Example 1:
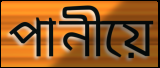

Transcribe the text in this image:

পানীয়ে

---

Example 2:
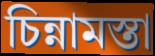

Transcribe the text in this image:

চিন্নামস্তা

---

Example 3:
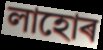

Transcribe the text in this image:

লাহোৰ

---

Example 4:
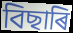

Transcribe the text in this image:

বিছাৰি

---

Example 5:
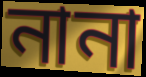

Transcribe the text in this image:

নানা